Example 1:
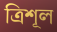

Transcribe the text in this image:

ত্ৰিশূল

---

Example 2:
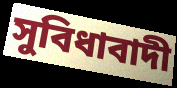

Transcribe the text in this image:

সুবিধাবাদী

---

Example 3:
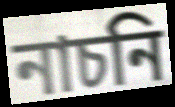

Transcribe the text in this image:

নাচনি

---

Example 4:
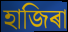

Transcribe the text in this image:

হাজিৰা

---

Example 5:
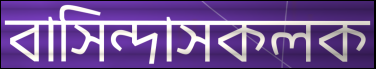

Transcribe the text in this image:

বাসিন্দাসকলক